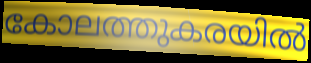
കോലത്തുകരയിൽ